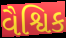
વૈશ્વિક